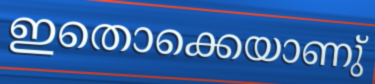
ഇതൊക്കെയാണു്